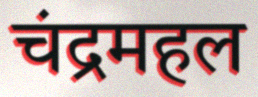
चंद्रमहल